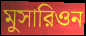
মুসারিওন